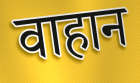
वाहान